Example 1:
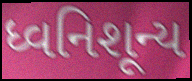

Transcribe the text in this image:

ધ્વનિશૂન્ય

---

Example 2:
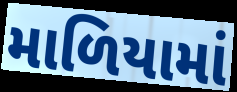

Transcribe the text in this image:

માળિયામાં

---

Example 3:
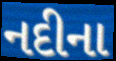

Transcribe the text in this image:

નદીના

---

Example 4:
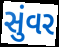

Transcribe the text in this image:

સુંવર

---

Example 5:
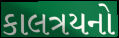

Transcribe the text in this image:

કાલત્રયનો